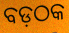
ବଡ଼ଠକ